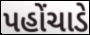
પહોંચાડે